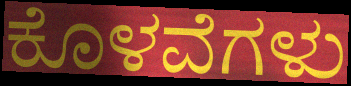
ಕೊಳವೆಗಳು